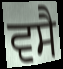
ਵਸੈ